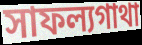
সাফল্যগাথা